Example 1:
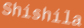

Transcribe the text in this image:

Shishila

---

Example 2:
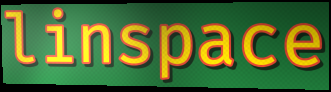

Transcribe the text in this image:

linspace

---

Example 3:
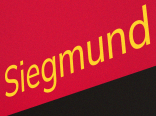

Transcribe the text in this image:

Siegmund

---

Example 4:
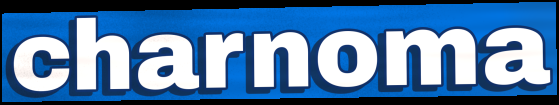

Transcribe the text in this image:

charnoma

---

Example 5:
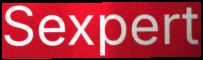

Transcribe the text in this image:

Sexpert